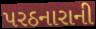
પરઠનારાની